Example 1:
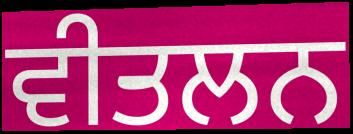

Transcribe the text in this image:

ਵੀਤਲਨ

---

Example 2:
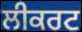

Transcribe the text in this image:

ਲੀਕਰਟ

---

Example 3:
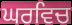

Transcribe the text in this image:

ਘਰਵਿਚ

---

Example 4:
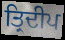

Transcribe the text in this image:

ਤ੍ਰਿਦੀਪ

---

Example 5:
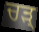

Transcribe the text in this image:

ਚੜ੍